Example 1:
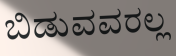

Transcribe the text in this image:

ಬಿಡುವವರಲ್ಲ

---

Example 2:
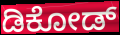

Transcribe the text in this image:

ಡಿಕೋಡ್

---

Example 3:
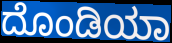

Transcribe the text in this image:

ದೊಂಡಿಯಾ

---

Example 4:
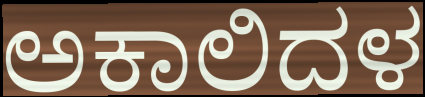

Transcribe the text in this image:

ಅಕಾಲಿದಳ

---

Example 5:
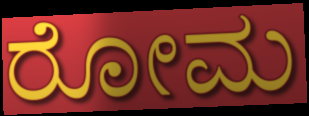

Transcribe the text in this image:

ರೋಮ